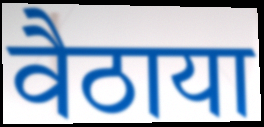
वैठाया